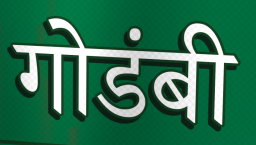
गोडंबी